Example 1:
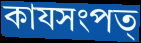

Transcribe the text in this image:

কাযসংপত্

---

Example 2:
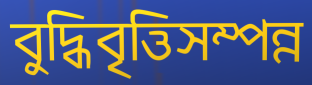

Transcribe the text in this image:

বুদ্ধিবৃত্তিসম্পন্ন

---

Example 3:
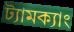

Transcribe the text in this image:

ট্যামক্যাং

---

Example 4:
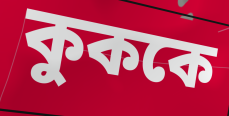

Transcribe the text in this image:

কুককে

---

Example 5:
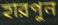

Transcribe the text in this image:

হারপুন